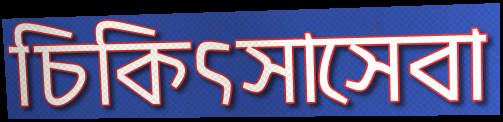
চিকিৎসাসেবা